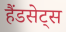
हैंडसेट्स